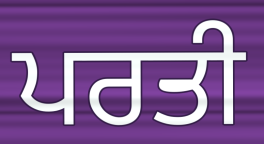
ਪਰਤੀ